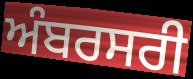
ਅੰਬਰਸਰੀ